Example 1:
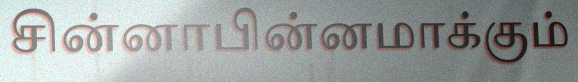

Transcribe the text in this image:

சின்னாபின்னமாக்கும்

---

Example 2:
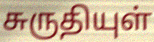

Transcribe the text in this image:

சுருதியுள்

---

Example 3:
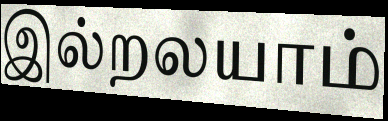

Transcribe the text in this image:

இல்றலயாம்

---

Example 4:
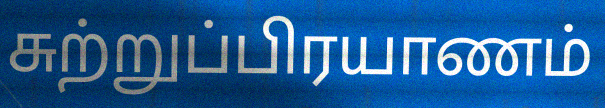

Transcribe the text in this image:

சுற்றுப்பிரயாணம்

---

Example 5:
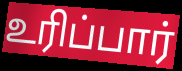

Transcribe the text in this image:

உரிப்பார்